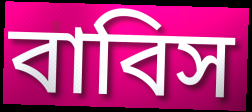
বাবিস